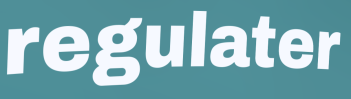
regulater